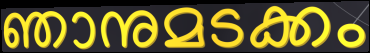
ഞാനുമടക്കം